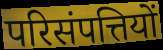
परिसंपत्तियों